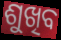
ଶୁଖିବ